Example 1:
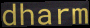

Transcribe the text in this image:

dharm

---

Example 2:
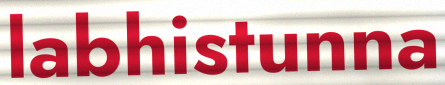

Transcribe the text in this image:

labhistunna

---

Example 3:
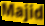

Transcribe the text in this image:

Majid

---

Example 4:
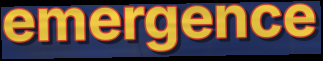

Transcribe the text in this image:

emergence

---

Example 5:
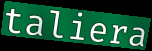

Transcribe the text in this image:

taliera